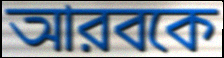
আরবকে